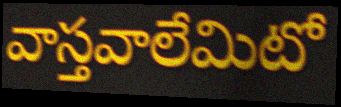
వాస్తవాలేమిటో